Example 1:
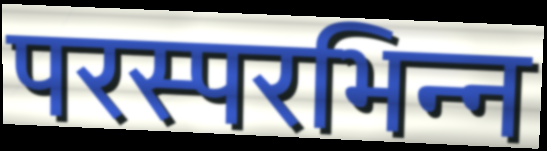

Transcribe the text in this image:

परस्परभिन्न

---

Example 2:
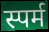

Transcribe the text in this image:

स्पर्म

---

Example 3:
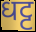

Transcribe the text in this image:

धट्ट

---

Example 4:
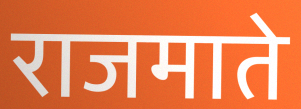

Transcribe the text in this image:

राजमाते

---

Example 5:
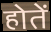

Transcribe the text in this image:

होतें